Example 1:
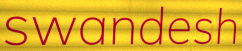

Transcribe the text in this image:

swandesh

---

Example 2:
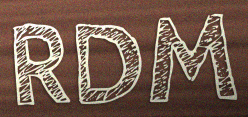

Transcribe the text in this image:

RDM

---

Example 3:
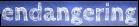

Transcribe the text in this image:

endangering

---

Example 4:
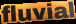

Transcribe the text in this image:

fluvial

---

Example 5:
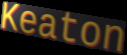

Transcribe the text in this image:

Keaton